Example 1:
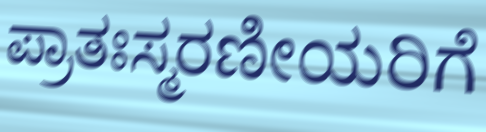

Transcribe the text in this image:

ಪ್ರಾತಃಸ್ಮರಣೀಯರಿಗೆ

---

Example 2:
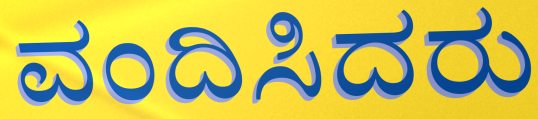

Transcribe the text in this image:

ವಂದಿಸಿದರು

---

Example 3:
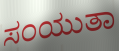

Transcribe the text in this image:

ಸಂಯುತಾ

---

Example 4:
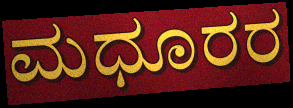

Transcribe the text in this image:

ಮಧೂರರ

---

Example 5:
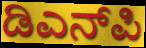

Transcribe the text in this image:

ಡಿಎನ್‌ಪಿ